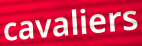
cavaliers